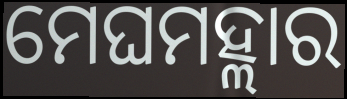
ମେଘମହ୍ଲାର